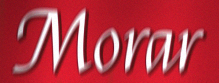
Morar